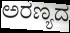
ಅರಣ್ಯದ